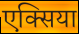
एक्सिया